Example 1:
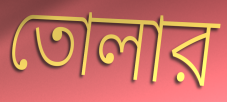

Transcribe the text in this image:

তোলার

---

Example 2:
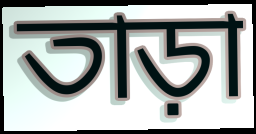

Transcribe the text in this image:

তাড়া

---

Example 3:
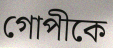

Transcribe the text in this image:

গোপীকে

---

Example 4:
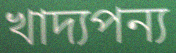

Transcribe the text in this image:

খাদ্যপন্য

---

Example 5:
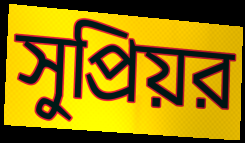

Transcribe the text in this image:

সুপ্রিয়র